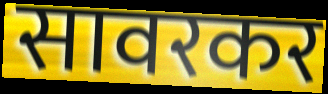
सावरकर